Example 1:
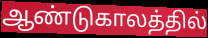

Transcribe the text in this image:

ஆண்டுகாலத்தில்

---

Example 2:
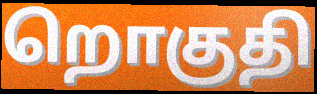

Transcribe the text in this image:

றொகுதி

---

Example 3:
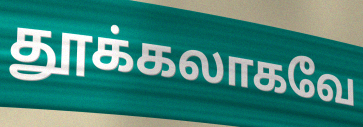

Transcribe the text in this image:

தூக்கலாகவே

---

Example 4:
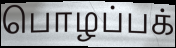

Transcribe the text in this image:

பொழப்பக்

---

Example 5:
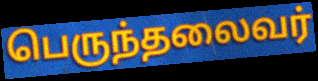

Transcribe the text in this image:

பெருந்தலைவர்